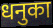
धनुका